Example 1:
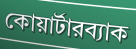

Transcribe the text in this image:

কোয়ার্টারব্যাক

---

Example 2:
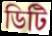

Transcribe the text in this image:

ডিটি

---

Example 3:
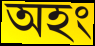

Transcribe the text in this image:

অহং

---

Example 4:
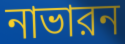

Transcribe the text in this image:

নাভারন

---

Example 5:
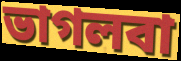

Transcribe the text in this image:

ভাগলবা